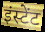
इंस्टेंट